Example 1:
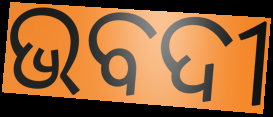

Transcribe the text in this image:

ଭବଦୀ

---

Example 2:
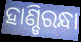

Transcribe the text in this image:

ହାଣ୍ଡିରନ୍ଧା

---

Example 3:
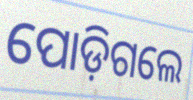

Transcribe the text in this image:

ପୋଡ଼ିଗଲେ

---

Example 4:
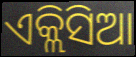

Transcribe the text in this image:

ଏକ୍ଲିସିଆ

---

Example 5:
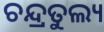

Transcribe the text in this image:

ଚନ୍ଦ୍ରତୁଲ୍ୟ